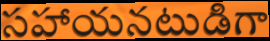
సహాయనటుడిగా